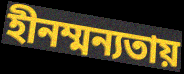
হীনম্মন্যতায়